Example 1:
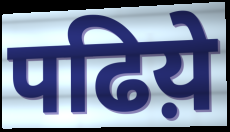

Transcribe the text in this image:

पढिय़े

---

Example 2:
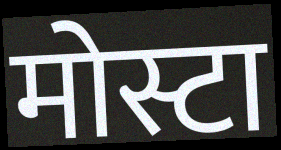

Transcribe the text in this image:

मोस्टा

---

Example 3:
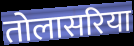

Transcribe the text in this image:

तोलासरिया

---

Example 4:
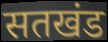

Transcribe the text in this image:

सतखंड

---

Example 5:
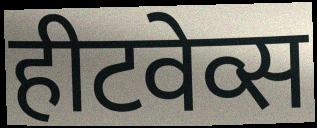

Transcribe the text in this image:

हीटवेव्स